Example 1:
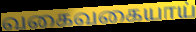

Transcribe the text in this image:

வகைவகையாய்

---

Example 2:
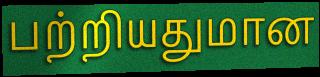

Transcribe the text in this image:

பற்றியதுமான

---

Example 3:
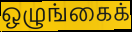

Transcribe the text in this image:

ஒழுங்கைக்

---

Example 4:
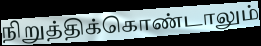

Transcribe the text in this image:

நிறுத்திக்கொண்டாலும்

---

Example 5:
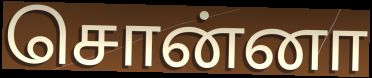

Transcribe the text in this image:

சொன்னா